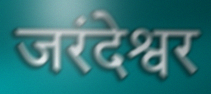
जरंदेश्वर